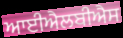
ਆਈਐਲਬੀਐਸ